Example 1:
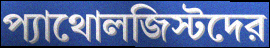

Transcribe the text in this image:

প্যাথোলজিস্টদের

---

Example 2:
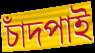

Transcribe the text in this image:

চাঁদপাই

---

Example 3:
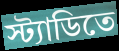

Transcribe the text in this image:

স্ট্যাডিতে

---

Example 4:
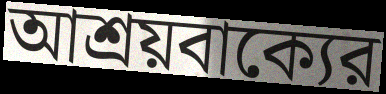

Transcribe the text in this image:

আশ্রয়বাক্যের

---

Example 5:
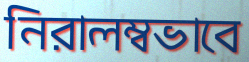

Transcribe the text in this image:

নিরালম্বভাবে